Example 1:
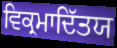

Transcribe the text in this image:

ਵਿਕ੍ਰਮਾਦਿੱਤਯ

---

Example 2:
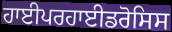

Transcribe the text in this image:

ਹਾਈਪਰਹਾਈਡਰੋਸਿਸ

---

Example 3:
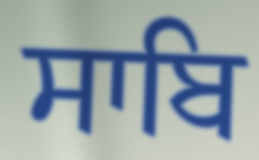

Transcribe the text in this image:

ਸਾਬਿ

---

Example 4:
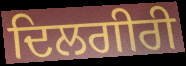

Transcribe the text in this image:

ਦਿਲਗੀਰੀ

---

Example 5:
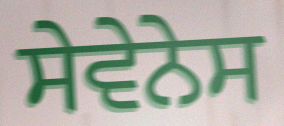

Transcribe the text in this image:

ਸੇਵੇਨੇਸ